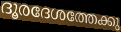
ദൂരദേശത്തേക്കു